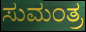
ಸುಮಂತ್ರ